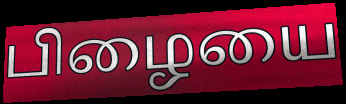
பிழையை